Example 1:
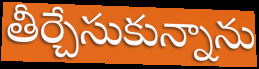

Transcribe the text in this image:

తీర్చేసుకున్నాను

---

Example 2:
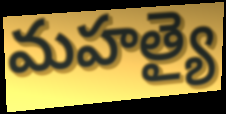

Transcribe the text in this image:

మహత్యై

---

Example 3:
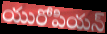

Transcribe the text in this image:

యురోపియన్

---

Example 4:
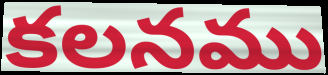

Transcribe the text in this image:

కలనము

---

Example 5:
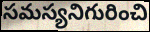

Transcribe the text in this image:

సమస్యనిగురించి